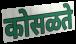
कोसळते